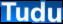
Tudu